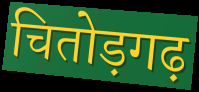
चितोड़गढ़